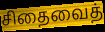
சிதைவைத்